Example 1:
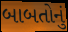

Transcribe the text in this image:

બાબતોનું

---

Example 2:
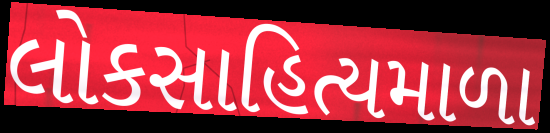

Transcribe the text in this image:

લોકસાહિત્યમાળા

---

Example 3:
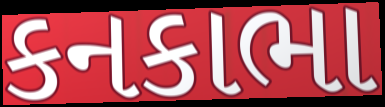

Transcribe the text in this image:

કનકાભા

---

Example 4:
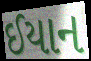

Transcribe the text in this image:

ઈયાન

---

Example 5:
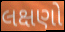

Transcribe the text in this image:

લક્ષણો